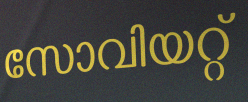
സോവിയറ്റ്